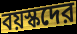
বয়স্কদের